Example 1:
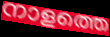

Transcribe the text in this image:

നാളത്തെ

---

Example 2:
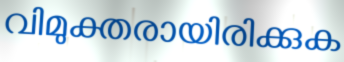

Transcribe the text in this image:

വിമുക്തരായിരിക്കുക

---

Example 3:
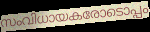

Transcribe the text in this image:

സംവിധായകരോടൊപ്പം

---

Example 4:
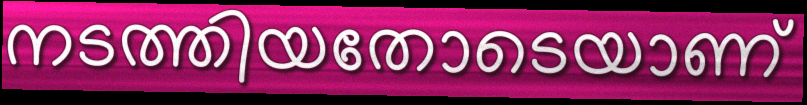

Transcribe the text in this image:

നടത്തിയതോടെയാണ്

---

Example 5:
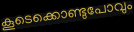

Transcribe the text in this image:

കൂടെക്കൊണ്ടുപോവും